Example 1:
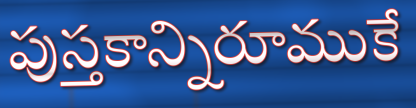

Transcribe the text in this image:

పుస్తకాన్నిరూముకే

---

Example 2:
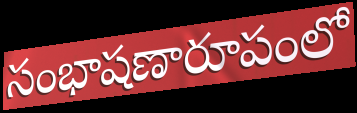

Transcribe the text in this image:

సంభాషణారూపంలో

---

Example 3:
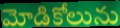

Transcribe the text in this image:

మోడికోలును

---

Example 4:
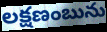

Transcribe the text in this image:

లక్షణంబును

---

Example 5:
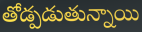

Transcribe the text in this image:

తోడ్పడుతున్నాయి